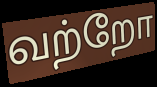
வற்றோ